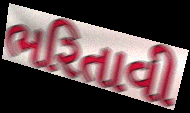
ભરિતાવી